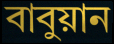
বাবুয়ান